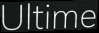
Ultime